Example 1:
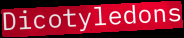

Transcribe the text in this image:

Dicotyledons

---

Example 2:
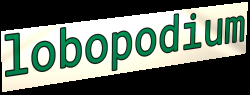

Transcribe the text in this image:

lobopodium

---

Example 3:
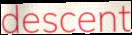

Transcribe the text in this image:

descent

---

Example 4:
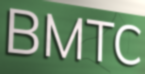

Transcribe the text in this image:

BMTC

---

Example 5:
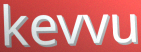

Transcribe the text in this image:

kevvu